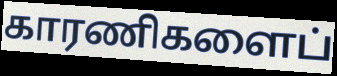
காரணிகளைப்